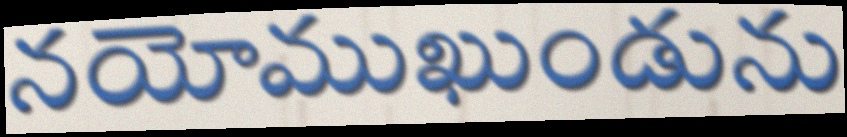
నయోముఖుండును